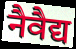
नैवैद्य